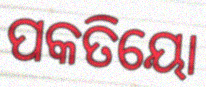
ପକତିୟୋ